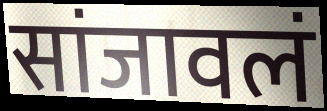
सांजावलं